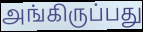
அங்கிருப்பது